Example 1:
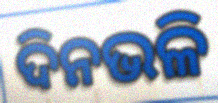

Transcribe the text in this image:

ଦିନଭଳି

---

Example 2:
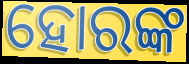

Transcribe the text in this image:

ହୋରଙ୍କ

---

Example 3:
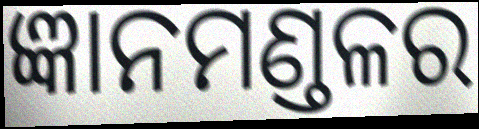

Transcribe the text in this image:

ଜ୍ଞାନମଣ୍ଡଳର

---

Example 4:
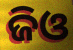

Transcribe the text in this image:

ଜିଓ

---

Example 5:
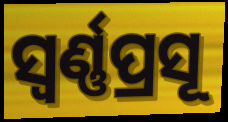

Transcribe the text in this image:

ସ୍ଵର୍ଣ୍ଣପ୍ରସୂ